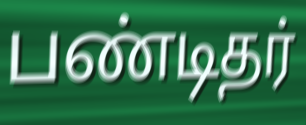
பண்டிதர்